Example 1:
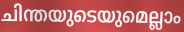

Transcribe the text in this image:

ചിന്തയുടെയുമെല്ലാം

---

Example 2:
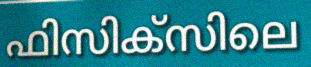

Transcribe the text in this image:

ഫിസിക്സിലെ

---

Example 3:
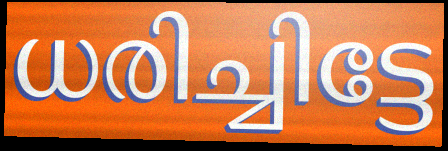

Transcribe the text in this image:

ധരിച്ചിട്ടേ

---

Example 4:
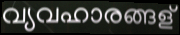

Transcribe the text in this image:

വ്യവഹാരങ്ങള്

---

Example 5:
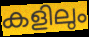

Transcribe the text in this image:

കളിലും